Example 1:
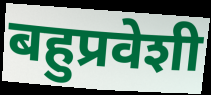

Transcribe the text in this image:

बहुप्रवेशी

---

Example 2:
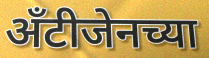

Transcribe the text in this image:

अँटीजेनच्या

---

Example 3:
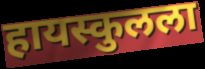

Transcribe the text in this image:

हायस्कुलला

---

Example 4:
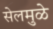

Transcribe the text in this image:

सेलमुळे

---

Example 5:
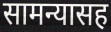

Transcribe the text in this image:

सामन्यासह